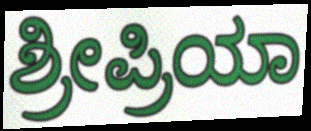
ಶ್ರೀಪ್ರಿಯಾ